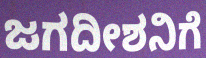
ಜಗದೀಶನಿಗೆ